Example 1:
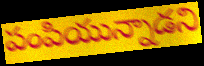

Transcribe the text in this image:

పంపియున్నాడని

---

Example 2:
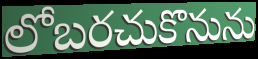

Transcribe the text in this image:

లోబరచుకొనును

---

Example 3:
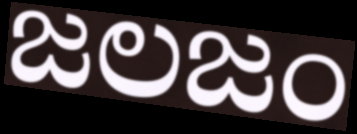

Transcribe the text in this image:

జలజం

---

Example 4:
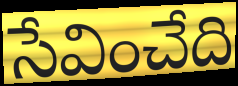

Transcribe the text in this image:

సేవించేది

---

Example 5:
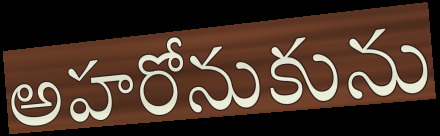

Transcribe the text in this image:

అహరోనుకును